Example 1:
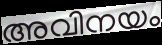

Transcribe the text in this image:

അവിനയം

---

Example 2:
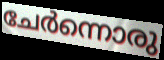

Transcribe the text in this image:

ചേർന്നൊരു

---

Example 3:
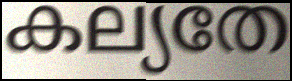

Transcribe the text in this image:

കല്യതേ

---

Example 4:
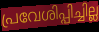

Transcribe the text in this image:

പ്രവേശിപ്പിച്ചില്ല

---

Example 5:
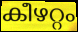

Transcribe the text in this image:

കീഴറ്റം